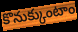
కొనుక్కుంటాం